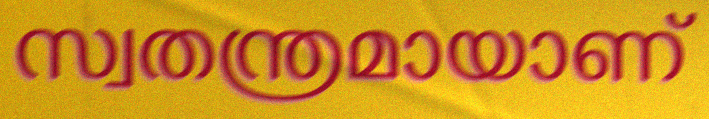
സ്വതന്ത്രമായാണ്